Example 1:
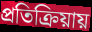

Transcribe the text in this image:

প্রতিক্রিয়ায়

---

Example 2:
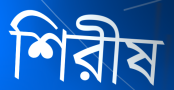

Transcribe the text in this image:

শিরীষ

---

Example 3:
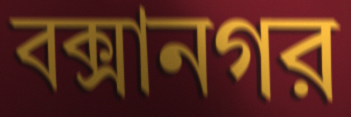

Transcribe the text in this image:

বক্সানগর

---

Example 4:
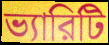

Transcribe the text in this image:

ভ্যারিটি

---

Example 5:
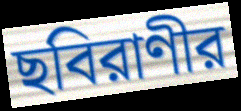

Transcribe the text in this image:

ছবিরাণীর